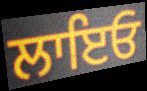
ਲਾਇਓ